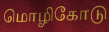
மொழிகோடு